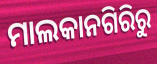
ମାଲକାନଗିରିରୁ